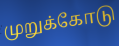
முறுக்கோடு